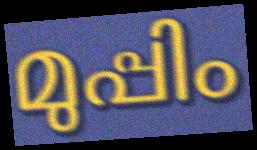
മുപ്പിം